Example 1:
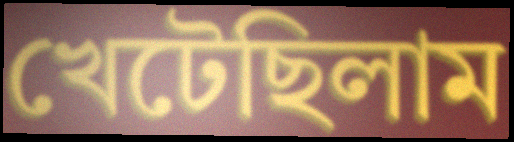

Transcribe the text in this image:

খেটেছিলাম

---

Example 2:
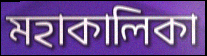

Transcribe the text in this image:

মহাকালিকা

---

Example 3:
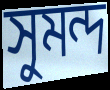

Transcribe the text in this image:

সুমন্দ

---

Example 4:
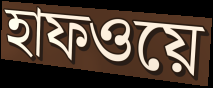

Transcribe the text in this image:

হাফওয়ে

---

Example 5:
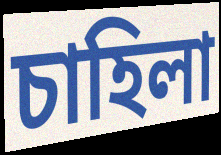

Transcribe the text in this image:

চাহিলা